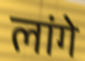
लांगे